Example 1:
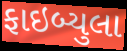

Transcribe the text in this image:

ફાઇબ્યુલા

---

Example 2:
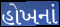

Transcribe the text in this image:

હોખનાં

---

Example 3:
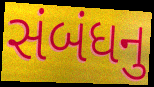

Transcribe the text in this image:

સંબંધનુ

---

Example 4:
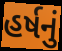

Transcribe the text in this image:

હર્ષનું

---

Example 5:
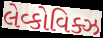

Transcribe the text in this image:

લેવ્કોવિક્ઝ